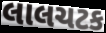
લાલચટક